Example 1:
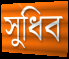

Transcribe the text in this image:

সুধিব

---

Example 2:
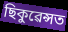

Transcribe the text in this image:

ছিকুৱেন্সত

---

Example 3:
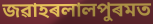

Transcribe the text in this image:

জৱাহৰলালপুৰমত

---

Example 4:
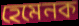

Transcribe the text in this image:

হেমেনক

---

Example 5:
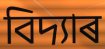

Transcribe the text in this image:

বিদ্যাৰ